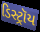
ડિસ્ટ્રૉય